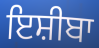
ਇਸ਼ੀਬਾ